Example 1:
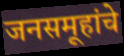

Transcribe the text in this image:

जनसमूहांचे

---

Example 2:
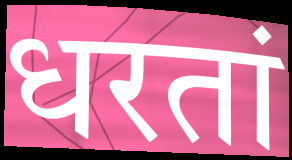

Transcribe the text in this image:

धरतां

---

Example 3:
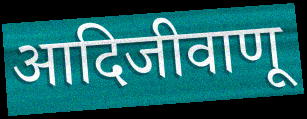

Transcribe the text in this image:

आदिजीवाणू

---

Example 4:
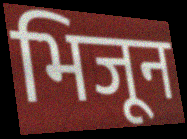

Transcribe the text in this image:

भिजून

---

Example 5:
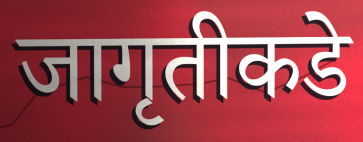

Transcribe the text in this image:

जागृतीकडे